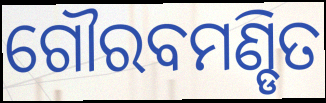
ଗୌରବମଣ୍ଡିତ